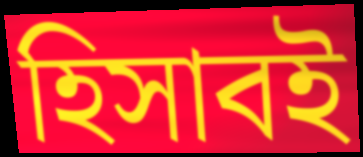
হিসাবই